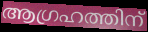
ആഗ്രഹത്തിന്